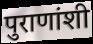
पुराणांशी